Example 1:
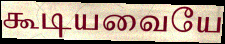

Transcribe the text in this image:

கூடியவையே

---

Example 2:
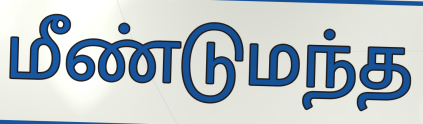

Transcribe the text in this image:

மீண்டுமந்த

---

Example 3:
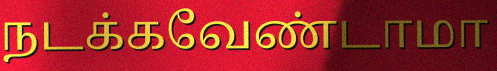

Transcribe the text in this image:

நடக்கவேண்டாமா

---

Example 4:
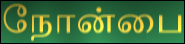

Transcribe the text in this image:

நோன்பை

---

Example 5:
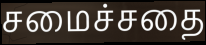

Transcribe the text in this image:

சமைச்சதை